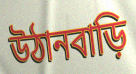
উঠানবাড়ি